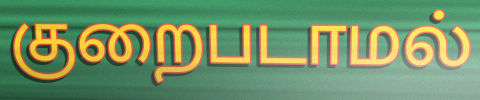
குறைபடாமல்